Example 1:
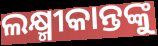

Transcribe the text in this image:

ଲକ୍ଷ୍ମୀକାନ୍ତଙ୍କୁ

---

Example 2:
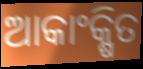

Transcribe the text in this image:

ଆକାଂକ୍ଷିତ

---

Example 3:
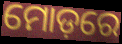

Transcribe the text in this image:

ମୋଡ଼ରେ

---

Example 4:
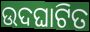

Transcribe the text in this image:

ଉଦଘାଟିତ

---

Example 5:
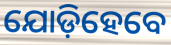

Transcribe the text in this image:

ଯୋଡ଼ିହେବେ